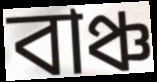
বাঞ্চ